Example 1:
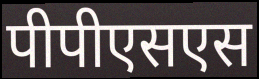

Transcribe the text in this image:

पीपीएसएस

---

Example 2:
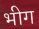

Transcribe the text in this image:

भीग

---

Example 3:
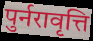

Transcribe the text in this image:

पुर्नरावृत्ति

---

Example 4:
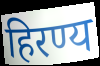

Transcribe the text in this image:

हिरण्य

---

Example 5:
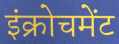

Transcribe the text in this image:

इंक्रोचमेंट